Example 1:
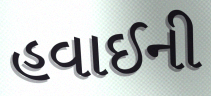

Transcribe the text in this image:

હવાઈની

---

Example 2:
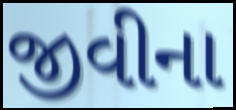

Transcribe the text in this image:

જીવીના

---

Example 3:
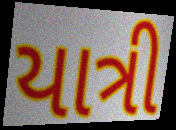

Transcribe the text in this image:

યાત્રી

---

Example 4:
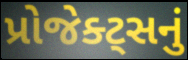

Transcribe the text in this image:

પ્રોજેક્ટ્સનું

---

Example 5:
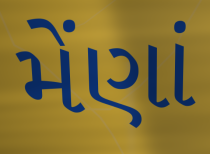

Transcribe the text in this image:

મેંણાં